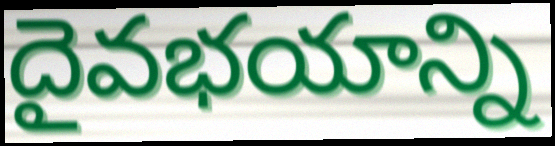
దైవభయాన్ని